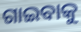
ଗାଇବାକୁ